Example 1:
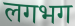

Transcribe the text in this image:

लगभग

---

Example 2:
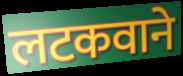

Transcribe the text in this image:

लटकवाने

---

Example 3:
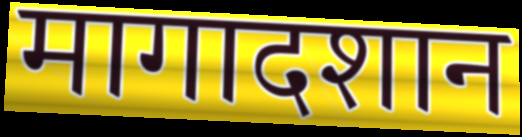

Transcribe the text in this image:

मागादशान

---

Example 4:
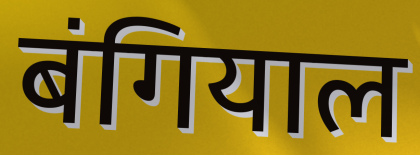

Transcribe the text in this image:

बंगियाल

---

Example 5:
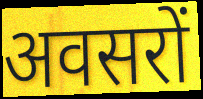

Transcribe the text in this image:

अवसरों